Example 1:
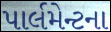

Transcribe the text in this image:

પાર્લમેન્ટના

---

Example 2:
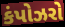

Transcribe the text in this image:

કંપોઝરો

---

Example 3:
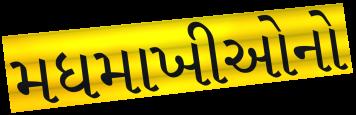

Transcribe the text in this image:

મધમાખીઓનો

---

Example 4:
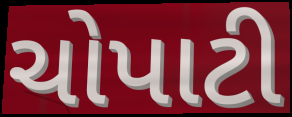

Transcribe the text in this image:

ચોપાટી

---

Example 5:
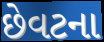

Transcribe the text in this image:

છેવટના